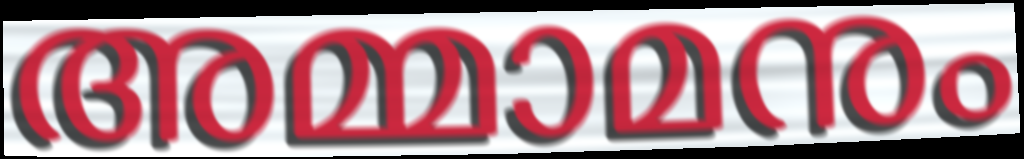
അമ്മാമനും